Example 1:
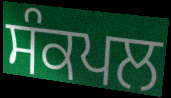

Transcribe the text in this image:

ਸੰਕਪਲ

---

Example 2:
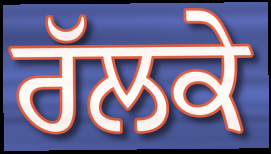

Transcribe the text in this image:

ਰੱਲਕੇ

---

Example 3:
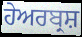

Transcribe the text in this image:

ਹੇਅਰਬ੍ਰਸ਼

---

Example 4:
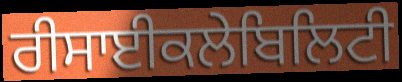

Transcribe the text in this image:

ਰੀਸਾਈਕਲੇਬਿਲਿਟੀ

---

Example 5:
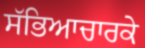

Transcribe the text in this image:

ਸੱਭਿਆਚਾਰਕੇ